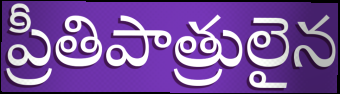
ప్రీతిపాత్రులైన